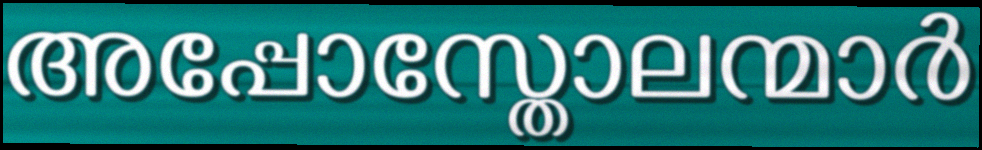
അപ്പോസ്തോലന്മാർ